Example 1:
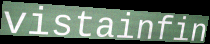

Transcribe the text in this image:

vistainfin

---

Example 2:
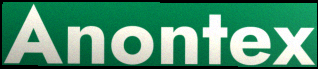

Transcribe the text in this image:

Anontex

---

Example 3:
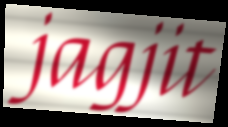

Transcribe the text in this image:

jagjit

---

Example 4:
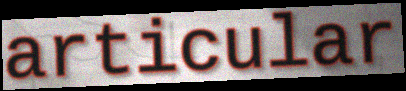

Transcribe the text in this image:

articular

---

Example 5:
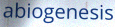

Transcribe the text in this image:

abiogenesis